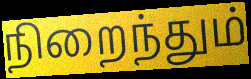
நிறைந்தும்